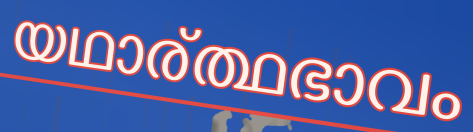
യഥാര്ത്ഥഭാവം